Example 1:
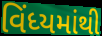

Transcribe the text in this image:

વિંધ્યમાંથી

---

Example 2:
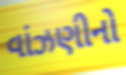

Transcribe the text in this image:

વાંઝણીનો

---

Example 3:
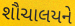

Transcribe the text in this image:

શૌચાલયને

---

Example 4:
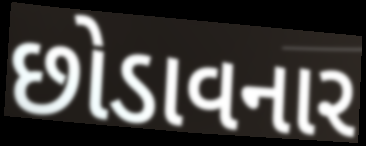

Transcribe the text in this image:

છોડાવનાર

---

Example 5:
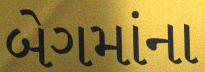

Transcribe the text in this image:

બેગમાંના